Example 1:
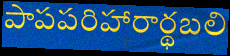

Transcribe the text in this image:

పాపపరిహారార్థబలి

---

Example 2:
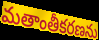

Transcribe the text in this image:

మతాంతీకరణను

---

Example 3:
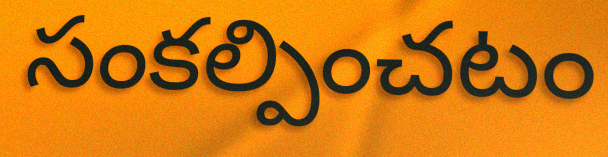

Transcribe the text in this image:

సంకల్పించటం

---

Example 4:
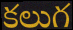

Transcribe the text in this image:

కలుగ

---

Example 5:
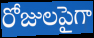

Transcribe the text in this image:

రోజులపైగా